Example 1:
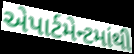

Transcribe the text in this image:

એપાર્ટમેન્ટમાંથી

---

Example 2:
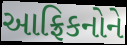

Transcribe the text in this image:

આફ્રિકનોને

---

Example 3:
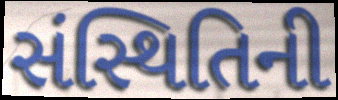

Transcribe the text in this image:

સંસ્થિતિની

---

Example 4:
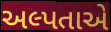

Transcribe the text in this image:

અલ્પતાએ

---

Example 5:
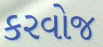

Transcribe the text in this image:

કરવોજ